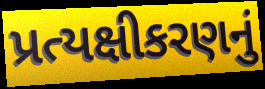
પ્રત્યક્ષીકરણનું